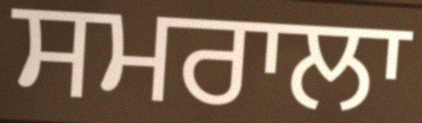
ਸਮਰਾਲਾ